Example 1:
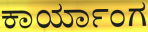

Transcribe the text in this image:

ಕಾರ್ಯಾಂಗ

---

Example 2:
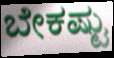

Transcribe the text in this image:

ಬೇಕಷ್ಟು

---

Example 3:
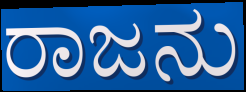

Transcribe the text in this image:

ರಾಜನು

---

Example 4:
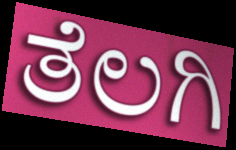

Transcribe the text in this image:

ತೆಲಗಿ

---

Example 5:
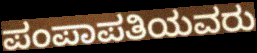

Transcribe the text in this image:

ಪಂಪಾಪತಿಯವರು